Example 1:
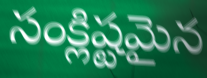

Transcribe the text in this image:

సంక్లిష్టమైన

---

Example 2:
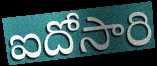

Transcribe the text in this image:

ఐదోసారి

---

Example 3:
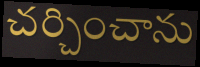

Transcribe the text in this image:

చర్చించాను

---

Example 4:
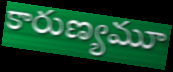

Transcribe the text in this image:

కారుణ్యమూ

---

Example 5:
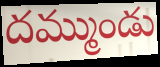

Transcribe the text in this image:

దమ్ముండు